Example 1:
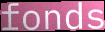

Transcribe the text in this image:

fonds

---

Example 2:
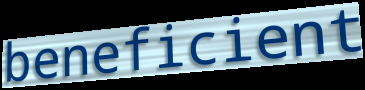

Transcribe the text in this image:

beneficient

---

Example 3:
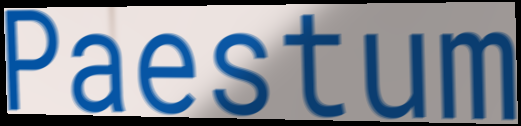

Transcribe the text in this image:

Paestum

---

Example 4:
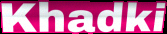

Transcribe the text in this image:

Khadki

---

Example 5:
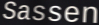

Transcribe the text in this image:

Sassen